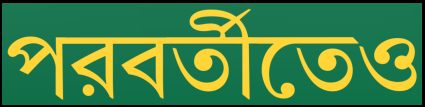
পরবর্তীতেও